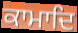
ਕਾਮਾਦਿ